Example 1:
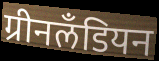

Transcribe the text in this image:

ग्रीनलॅंडियन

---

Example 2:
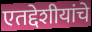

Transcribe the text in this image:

एतद्देशीयांचे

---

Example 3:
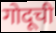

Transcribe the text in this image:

गोदूची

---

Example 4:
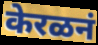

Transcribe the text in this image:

केरळनं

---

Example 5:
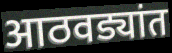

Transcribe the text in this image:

आठवड्यांत